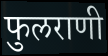
फुलराणी